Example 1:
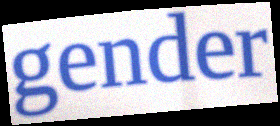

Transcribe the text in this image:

gender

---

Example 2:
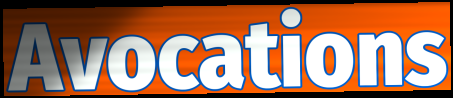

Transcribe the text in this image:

Avocations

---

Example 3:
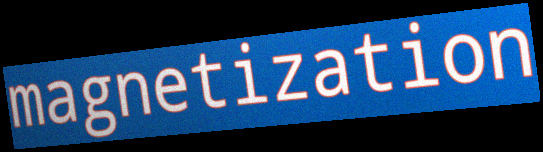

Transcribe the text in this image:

magnetization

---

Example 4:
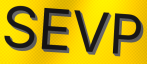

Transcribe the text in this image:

SEVP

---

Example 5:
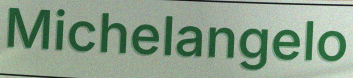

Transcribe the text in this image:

Michelangelo